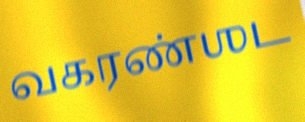
வகரண்ஶட